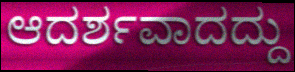
ಆದರ್ಶವಾದದ್ದು